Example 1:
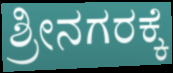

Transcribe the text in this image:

ಶ್ರೀನಗರಕ್ಕೆ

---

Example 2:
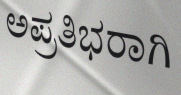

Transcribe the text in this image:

ಅಪ್ರತಿಭರಾಗಿ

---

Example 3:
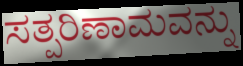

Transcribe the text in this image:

ಸತ್ಪರಿಣಾಮವನ್ನು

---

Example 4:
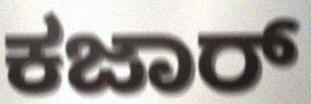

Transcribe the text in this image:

ಕಜಾರ್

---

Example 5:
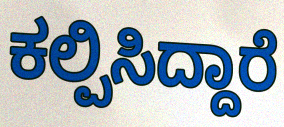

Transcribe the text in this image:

ಕಲ್ಪಿಸಿದ್ದಾರೆ